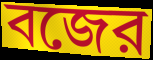
বজের